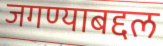
जगण्याबद्दल